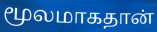
மூலமாகதான்